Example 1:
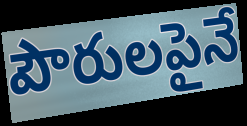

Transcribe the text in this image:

పౌరులపైనే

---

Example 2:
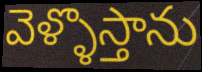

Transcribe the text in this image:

వెళ్ళొస్తాను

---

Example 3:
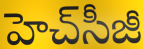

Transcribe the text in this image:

హెచ్‌సీజీ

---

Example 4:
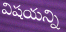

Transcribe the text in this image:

విషయన్ని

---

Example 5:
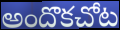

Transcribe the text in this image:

అందొకచోట